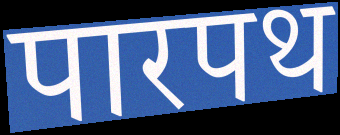
पारपथ